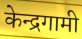
केन्द्रगामी